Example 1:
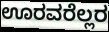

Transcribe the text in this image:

ಊರವರೆಲ್ಲರ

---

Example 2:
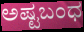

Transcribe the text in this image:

ಅಷ್ಟಬಂಧ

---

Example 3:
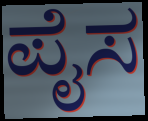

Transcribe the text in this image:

ಪೈಸ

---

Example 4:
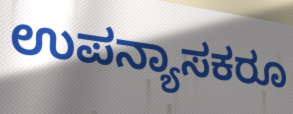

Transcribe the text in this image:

ಉಪನ್ಯಾಸಕರೂ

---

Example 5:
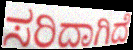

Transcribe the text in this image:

ಸರಿದಾಗಿದೆ